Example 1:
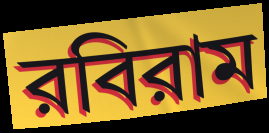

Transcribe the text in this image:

রবিরাম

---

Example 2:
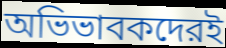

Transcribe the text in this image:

অভিভাবকদেরই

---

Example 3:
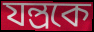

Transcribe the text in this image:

যন্ত্রকে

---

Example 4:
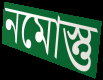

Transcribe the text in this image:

নমোস্তু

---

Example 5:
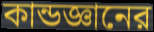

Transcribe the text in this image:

কান্ডজ্ঞানের